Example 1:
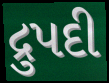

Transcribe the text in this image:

દ્રુપદી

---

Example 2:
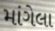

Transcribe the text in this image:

માંગેલા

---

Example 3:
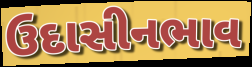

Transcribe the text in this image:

ઉદાસીનભાવ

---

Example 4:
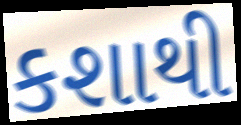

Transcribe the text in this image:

કશાથી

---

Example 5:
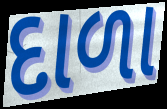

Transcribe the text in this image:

દાળા